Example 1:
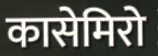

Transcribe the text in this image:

कासेमिरो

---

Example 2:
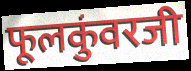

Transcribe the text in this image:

फूलकुंवरजी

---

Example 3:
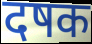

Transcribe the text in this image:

दषक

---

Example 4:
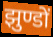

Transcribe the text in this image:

झुण्डों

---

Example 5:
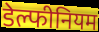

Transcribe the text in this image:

डेल्फीनियम